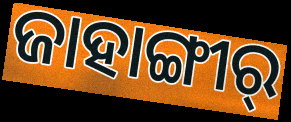
ଜାହାଙ୍ଗୀର୍